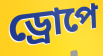
ড্ৰোপে